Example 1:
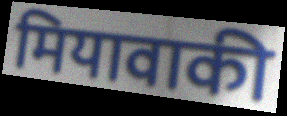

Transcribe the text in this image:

मियावाकी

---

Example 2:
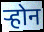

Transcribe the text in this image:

र्‍होन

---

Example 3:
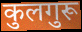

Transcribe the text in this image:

कुलगुरू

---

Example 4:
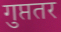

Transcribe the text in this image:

गुप्ततर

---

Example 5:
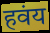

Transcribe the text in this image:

हवंय